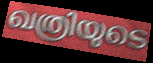
ഖത്രിയുടെ